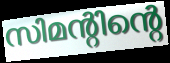
സിമന്റിന്റെ